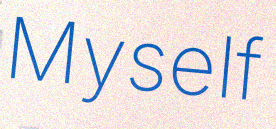
Myself